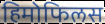
हिमोफिलस